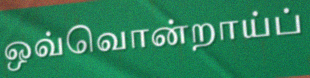
ஒவ்வொன்றாய்ப்